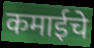
कमाईचे